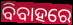
ବିବାହରେ